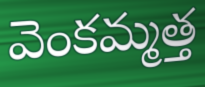
వెంకమ్మత్త